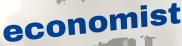
economist